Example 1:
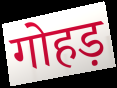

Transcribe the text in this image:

गोहड़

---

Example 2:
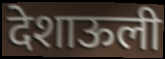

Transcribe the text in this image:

देशाऊली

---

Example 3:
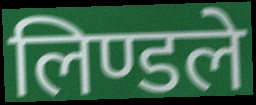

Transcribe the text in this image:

लिण्डले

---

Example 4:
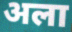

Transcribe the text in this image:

अला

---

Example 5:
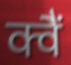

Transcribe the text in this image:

क्वैं